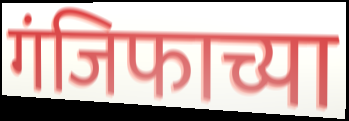
गंजिफाच्या